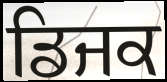
ਡਿਜਕ